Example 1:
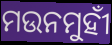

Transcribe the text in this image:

ମଉନମୁହୀଁ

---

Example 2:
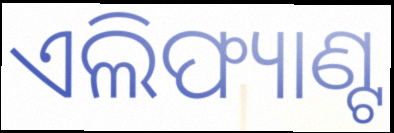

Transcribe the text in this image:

ଏଲିଫ୍ୟାଣ୍ଟ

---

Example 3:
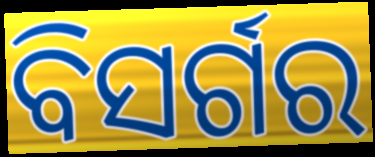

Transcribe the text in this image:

ବିସର୍ଗର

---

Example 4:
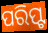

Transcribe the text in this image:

ପରିପ୍ଟ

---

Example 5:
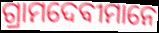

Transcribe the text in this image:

ଗ୍ରାମଦେବୀମାନେ